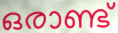
ഒരാണ്ട്